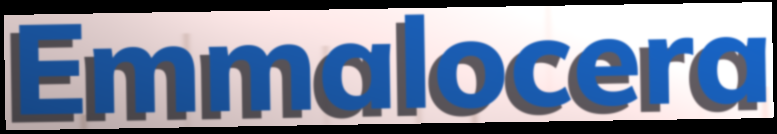
Emmalocera